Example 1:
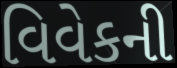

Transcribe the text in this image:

વિવેકની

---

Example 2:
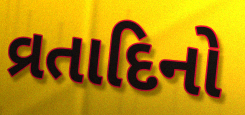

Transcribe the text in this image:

વ્રતાદિનો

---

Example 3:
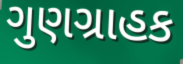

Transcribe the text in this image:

ગુણગ્રાહક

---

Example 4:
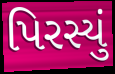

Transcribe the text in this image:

પિરસ્યું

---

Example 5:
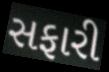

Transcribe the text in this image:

સફારી